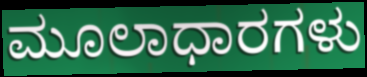
ಮೂಲಾಧಾರಗಳು